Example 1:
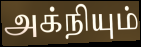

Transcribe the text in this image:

அக்நியும்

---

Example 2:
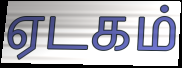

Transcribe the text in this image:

ஏடகம்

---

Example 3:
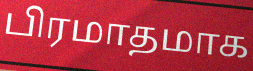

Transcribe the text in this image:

பிரமாதமாக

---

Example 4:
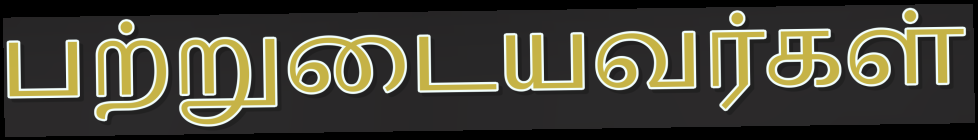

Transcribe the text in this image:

பற்றுடையவர்கள்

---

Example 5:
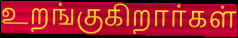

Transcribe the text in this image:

உறங்குகிறார்கள்